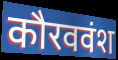
कौरववंश